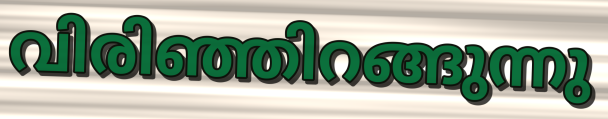
വിരിഞ്ഞിറങ്ങുന്നു